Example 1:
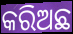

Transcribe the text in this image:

କରିଅଛ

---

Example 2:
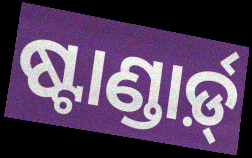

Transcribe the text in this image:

ଷ୍ଟାଣ୍ଡାର୍ଡ଼୍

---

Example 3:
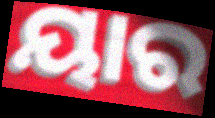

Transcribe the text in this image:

ୟାର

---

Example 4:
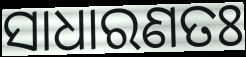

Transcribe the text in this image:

ସାଧାରଣତଃ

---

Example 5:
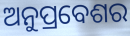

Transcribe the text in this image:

ଅନୁପ୍ରବେଶର